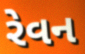
રેવન